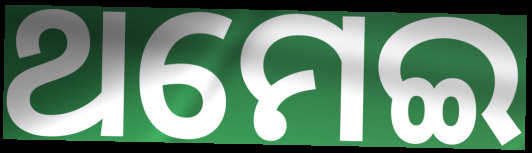
ଥମେଇ